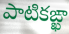
పాటికఙ్ఖా